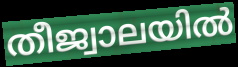
തീജ്വാലയിൽ